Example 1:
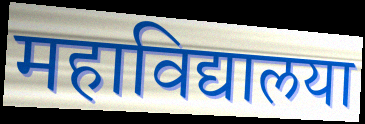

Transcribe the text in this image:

महाविद्यालया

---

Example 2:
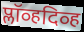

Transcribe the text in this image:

प्लॉव्हदिव्ह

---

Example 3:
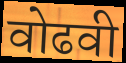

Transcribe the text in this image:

वोढवी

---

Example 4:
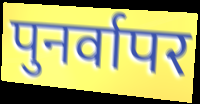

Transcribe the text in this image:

पुनर्वापर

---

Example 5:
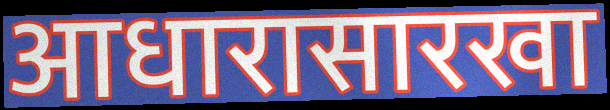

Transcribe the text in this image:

आधारासारखा